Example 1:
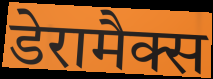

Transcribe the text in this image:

डेरामैक्स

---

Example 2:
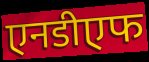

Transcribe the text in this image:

एनडीएफ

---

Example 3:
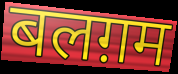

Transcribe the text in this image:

बलग़म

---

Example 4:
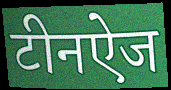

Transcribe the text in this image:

टीनऐज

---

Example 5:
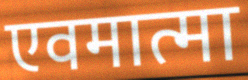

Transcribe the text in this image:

एवमात्मा